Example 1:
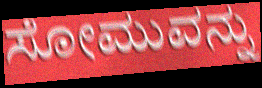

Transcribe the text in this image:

ಸೋಮುವನ್ನು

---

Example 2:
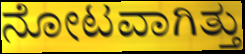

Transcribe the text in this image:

ನೋಟವಾಗಿತ್ತು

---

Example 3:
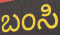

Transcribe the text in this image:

ಬಂಸಿ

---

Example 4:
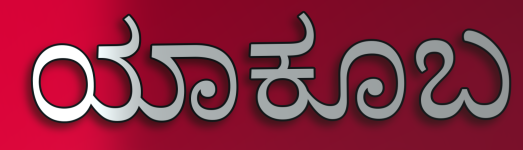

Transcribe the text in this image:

ಯಾಕೂಬ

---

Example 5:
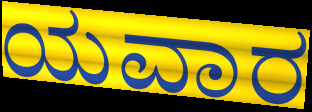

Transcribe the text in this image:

ಯವಾರ